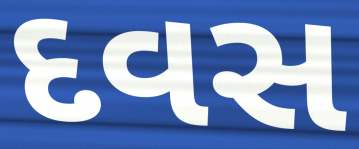
દવસ